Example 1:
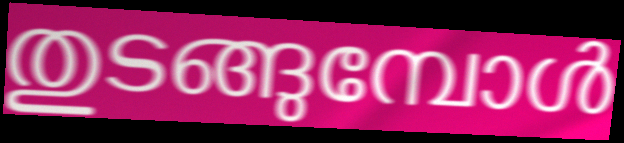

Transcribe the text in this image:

തുടങ്ങുമ്പോൾ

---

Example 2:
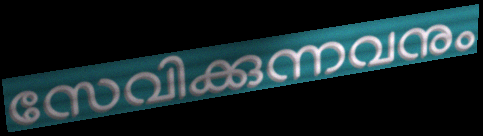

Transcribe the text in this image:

സേവിക്കുന്നവനും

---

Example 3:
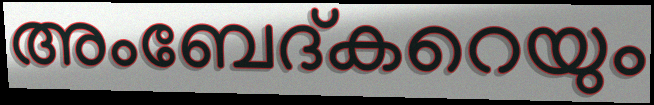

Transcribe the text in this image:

അംബേദ്കറെയും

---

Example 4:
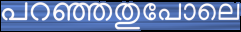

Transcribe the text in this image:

പറഞ്ഞതുപോലെ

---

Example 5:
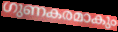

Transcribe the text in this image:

ഗുണകരമാകും